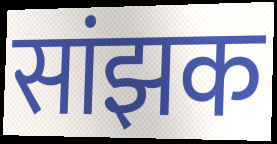
सांझक